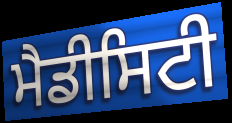
ਮੈਡੀਸਿਟੀ